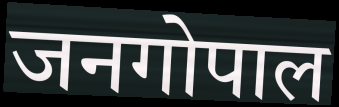
जनगोपाल